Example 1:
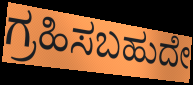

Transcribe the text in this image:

ಗ್ರಹಿಸಬಹುದೇ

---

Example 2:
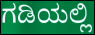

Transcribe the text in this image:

ಗಡಿಯಲ್ಲಿ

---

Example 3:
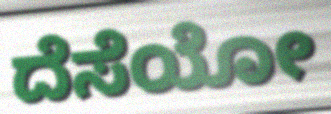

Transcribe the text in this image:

ದೆಸೆಯೋ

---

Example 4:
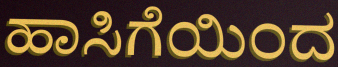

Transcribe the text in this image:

ಹಾಸಿಗೆಯಿಂದ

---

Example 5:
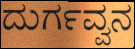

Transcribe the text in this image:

ದುರ್ಗವ್ವನ